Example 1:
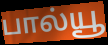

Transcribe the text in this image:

பால்யூ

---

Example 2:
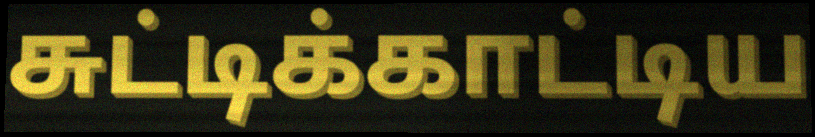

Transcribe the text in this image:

சுட்டிக்காட்டிய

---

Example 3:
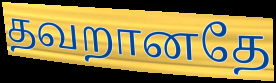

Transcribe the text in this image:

தவறானதே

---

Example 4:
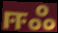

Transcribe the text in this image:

ஈஃ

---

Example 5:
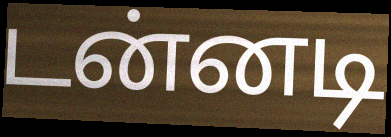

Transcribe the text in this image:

டன்னடி